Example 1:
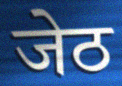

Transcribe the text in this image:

जेठ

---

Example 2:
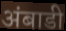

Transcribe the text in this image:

अंबाडी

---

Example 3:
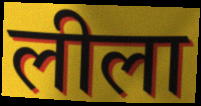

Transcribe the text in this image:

लीला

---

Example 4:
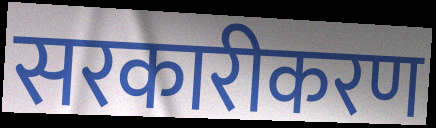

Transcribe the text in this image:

सरकारीकरण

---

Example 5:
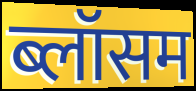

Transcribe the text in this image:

ब्लॉसम